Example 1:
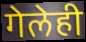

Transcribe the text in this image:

गेलेही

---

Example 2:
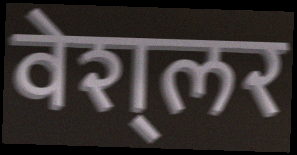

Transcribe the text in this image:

वेश्लर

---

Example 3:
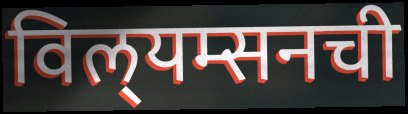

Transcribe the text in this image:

विल्यम्सनची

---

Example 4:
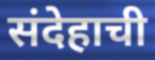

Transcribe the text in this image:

संदेहाची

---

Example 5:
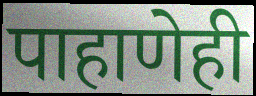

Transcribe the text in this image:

पाहाणेही